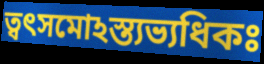
ত্বৎসমোঽস্ত্যভ্যধিকঃ